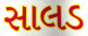
સાલડ